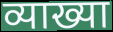
व्याख्या